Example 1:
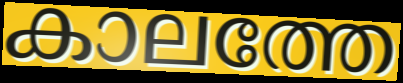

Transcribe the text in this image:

കാലത്തേ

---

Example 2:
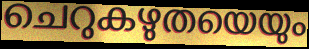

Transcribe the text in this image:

ചെറുകഴുതയെയും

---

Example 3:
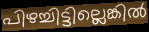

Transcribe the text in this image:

പിഴച്ചിട്ടില്ലെങ്കിൽ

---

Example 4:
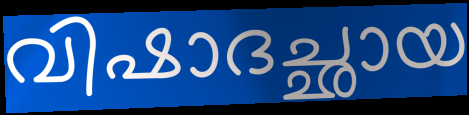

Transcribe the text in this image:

വിഷാദച്ഛായ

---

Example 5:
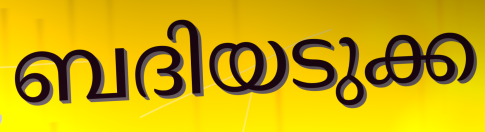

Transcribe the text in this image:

ബദിയടുക്ക